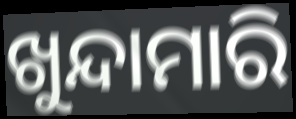
ଖୁନ୍ଦାମାରି